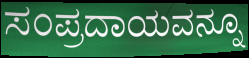
ಸಂಪ್ರದಾಯವನ್ನೂ